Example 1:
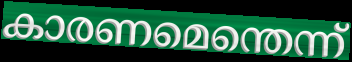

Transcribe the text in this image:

കാരണമെന്തെന്ന്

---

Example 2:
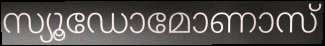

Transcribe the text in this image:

സ്യൂഡോമോണാസ്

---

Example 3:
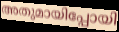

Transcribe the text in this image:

അതുമായിപ്പോയി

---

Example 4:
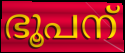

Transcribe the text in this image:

ഭൂപന്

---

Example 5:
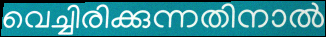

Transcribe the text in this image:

വെച്ചിരിക്കുന്നതിനാൽ